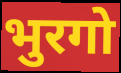
भुरगो